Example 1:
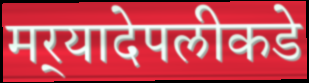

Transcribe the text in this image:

मर्यादेपलीकडे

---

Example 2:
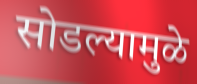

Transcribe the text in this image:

सोडल्यामुळे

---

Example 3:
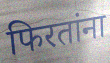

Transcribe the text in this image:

फिरतांना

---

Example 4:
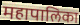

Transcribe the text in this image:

महापालिका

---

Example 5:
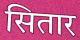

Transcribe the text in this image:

सितार